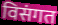
विसंगत